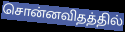
சொன்னவிதத்தில்